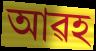
আৱহ